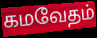
கமவேதம்